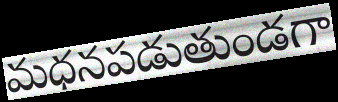
మధనపడుతుండగా